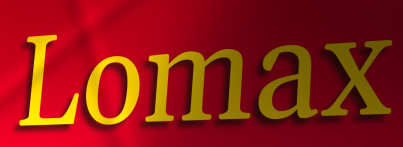
Lomax